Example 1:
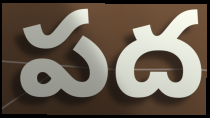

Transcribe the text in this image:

పద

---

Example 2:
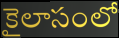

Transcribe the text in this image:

కైలాసంలో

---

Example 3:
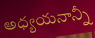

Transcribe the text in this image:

అధ్యయనాన్నీ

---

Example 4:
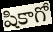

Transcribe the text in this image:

షికాగో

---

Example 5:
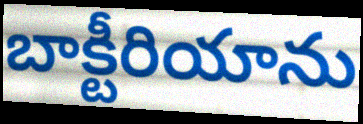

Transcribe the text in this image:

బాక్టీరియాను